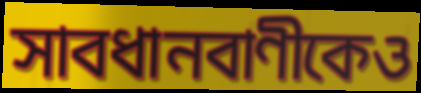
সাবধানবাণীকেও